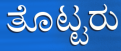
ತೊಟ್ಟರು